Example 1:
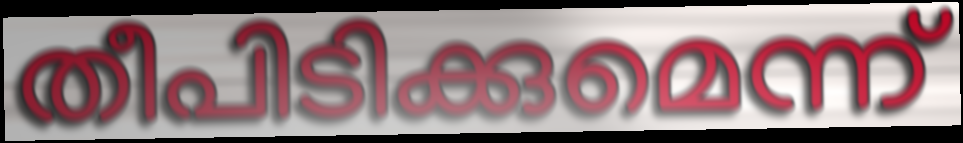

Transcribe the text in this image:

തീപിടിക്കുമെന്ന്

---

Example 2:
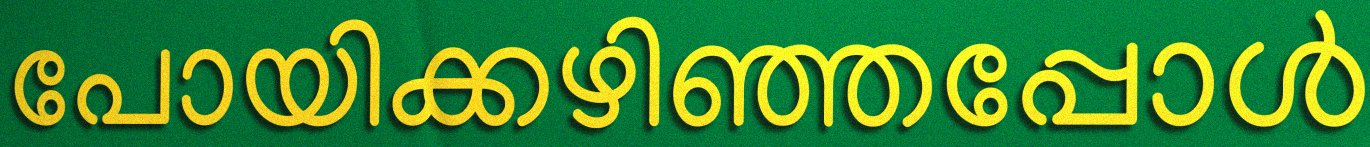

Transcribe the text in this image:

പോയിക്കഴിഞ്ഞപ്പോൾ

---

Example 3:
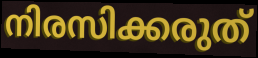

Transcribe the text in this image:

നിരസിക്കരുത്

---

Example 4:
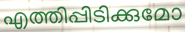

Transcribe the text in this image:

എത്തിപ്പിടിക്കുമോ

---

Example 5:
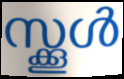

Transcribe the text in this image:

സ്ക്കൂൾ